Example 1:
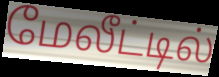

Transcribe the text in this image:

மேலீட்டில்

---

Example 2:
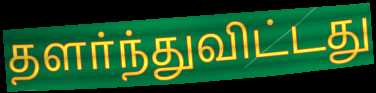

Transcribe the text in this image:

தளர்ந்துவிட்டது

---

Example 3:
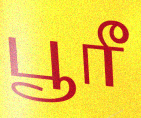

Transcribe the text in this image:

பூரீ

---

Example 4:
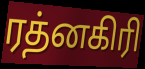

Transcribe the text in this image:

ரத்னகிரி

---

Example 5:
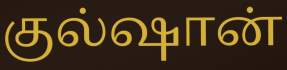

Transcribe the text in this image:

குல்ஷான்